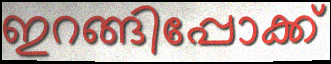
ഇറങ്ങിപ്പോക്ക്